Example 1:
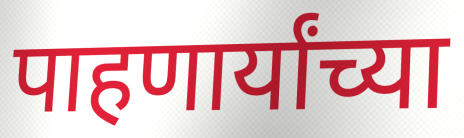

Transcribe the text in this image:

पाहणार्यांच्या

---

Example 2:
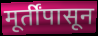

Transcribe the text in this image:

मूर्तींपासून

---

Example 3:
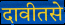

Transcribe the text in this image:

दावीतसे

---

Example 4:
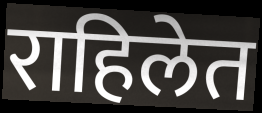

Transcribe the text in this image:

राहिलेत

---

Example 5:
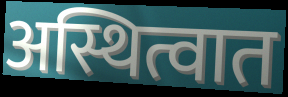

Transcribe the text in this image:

अस्थित्वात